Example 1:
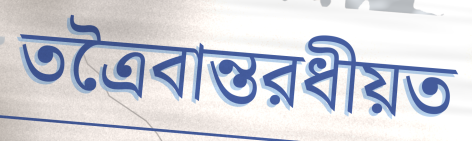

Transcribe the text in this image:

তত্রৈবান্তরধীয়ত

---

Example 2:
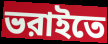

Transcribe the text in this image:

ভরাইতে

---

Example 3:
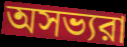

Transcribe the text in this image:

অসভ্যরা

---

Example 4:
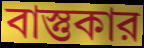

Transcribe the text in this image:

বাস্তুকার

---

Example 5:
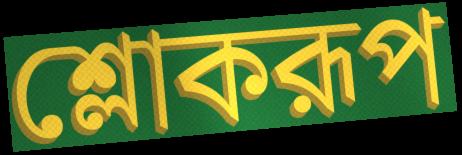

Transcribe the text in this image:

শ্লোকরূপ